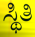
ಸ್ಥಿತಿ